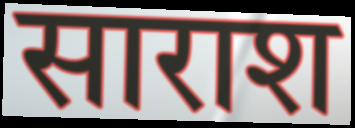
साराश